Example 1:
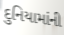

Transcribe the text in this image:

દુનિયામાંની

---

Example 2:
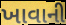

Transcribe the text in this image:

ખાવાની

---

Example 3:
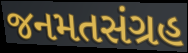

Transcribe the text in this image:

જનમતસંગ્રહ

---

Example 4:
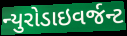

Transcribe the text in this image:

ન્યુરોડાઇવર્જન્ટ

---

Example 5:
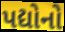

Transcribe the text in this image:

પદ્યોનો